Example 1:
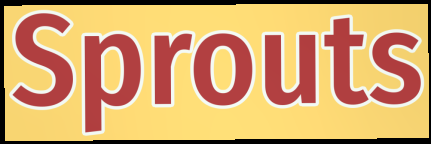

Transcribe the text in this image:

Sprouts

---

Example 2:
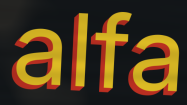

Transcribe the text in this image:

alfa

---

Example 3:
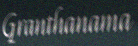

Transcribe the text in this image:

Granthanama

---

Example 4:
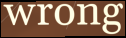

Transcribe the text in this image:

wrong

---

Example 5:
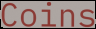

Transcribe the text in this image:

Coins